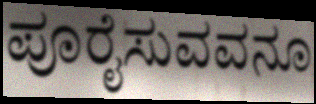
ಪೂರೈಸುವವನೂ